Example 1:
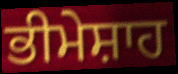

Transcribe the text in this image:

ਭੀਮੇਸ਼ਾਹ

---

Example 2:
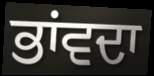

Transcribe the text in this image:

ਭਾਂਵਦਾ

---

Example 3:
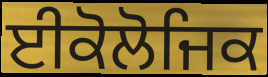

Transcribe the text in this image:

ਈਕੋਲੋਜਿਕ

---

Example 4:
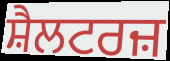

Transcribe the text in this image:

ਸ਼ੈਲਟਰਜ਼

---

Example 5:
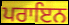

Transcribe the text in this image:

ਪਰਾਇਨ